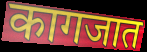
कागजात